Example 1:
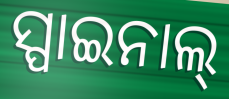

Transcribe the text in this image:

ସ୍ପାଇନାଲ୍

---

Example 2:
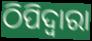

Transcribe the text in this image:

ଠିପିଦ୍ଵାରା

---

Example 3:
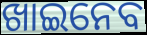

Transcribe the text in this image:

ଖାଇନେବ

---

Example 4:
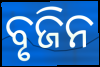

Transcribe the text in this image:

ବୃଜିନ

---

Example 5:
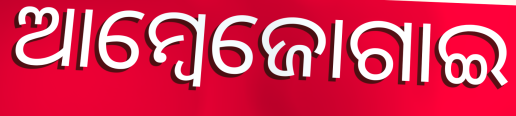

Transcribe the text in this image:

ଆମ୍ବେଜୋଗାଇ